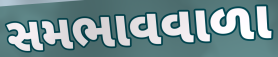
સમભાવવાળા